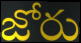
జోరు